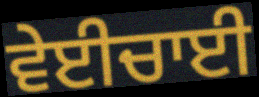
ਵੇਈਚਾਈ